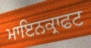
ਮਾਇਨਕ੍ਰਾਫਟ